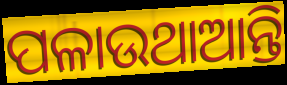
ପଳାଉଥାଆନ୍ତି